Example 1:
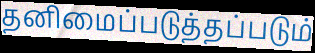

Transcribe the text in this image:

தனிமைப்படுத்தப்படும்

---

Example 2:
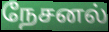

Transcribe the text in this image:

நேசனல்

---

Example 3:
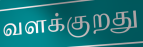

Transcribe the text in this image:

வளக்குறது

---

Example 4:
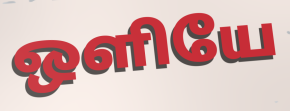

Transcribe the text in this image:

ஒளியே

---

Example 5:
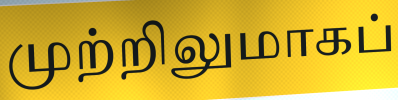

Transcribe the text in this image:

முற்றிலுமாகப்